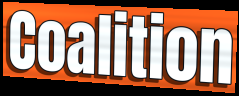
Coalition